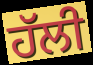
ਹੱਲੀ